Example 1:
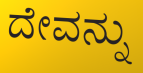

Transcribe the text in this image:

ದೇವನ್ನು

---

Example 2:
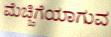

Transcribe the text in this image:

ಮೆಚ್ಚಿಗೆಯಾಗುವ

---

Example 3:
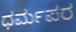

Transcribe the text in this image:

ಧರ್ಮಪರ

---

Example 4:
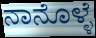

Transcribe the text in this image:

ನಾನೊಳ್ಳೆ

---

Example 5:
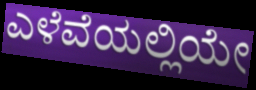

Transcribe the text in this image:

ಎಳೆವೆಯಲ್ಲಿಯೇ